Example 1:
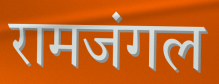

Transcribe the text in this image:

रामजंगल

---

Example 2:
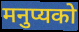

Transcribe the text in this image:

मनुप्यको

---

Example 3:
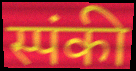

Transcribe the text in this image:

स्पंकी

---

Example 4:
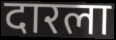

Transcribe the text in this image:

दारला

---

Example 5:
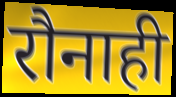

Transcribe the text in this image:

रौनाही